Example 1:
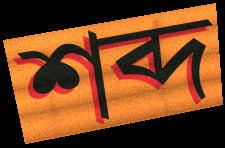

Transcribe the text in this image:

শব্দ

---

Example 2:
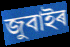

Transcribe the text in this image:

জুবাইৰ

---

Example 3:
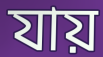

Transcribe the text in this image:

যায়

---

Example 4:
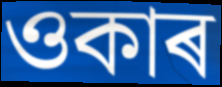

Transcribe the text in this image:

ওকাৰ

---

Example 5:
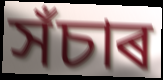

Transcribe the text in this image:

সঁচাৰ